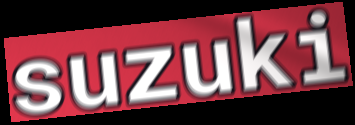
suzuki